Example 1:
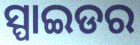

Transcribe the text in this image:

ସ୍ପାଇଡର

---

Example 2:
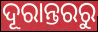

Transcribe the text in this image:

ଦୂରାନ୍ତରରୁ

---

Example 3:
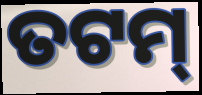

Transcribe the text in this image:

ତଟମ୍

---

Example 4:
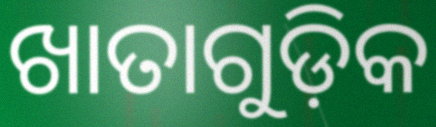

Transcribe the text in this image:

ଖାତାଗୁଡ଼ିକ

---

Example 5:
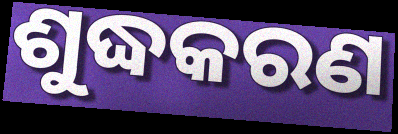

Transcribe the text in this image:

ଶୁଦ୍ଧକରଣ